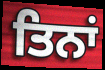
ਤਿਨਾਂ